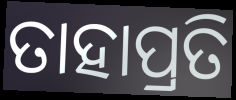
ତାହାପ୍ରତି